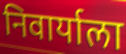
निवार्याला